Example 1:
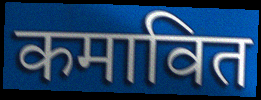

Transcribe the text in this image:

कमावित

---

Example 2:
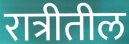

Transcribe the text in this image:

रात्रीतील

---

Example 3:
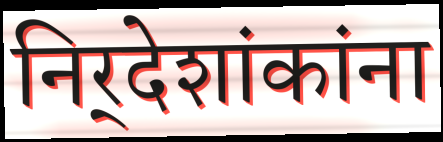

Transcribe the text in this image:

निर्देशांकांना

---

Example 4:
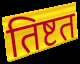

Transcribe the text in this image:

तिष्टत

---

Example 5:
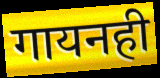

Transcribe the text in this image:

गायनही